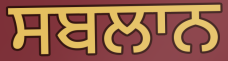
ਸਬਲਾਨ